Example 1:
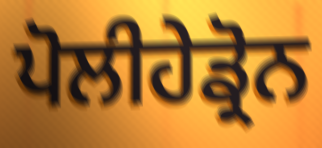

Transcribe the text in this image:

ਪੋਲੀਹੇਡ੍ਰੋਨ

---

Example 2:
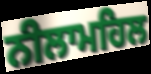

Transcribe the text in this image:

ਨੀਲਾਮਹਿਲ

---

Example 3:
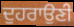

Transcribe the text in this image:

ਦੁਹਰਾਉਣੀ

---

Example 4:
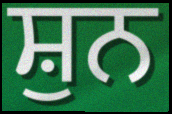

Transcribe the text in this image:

ਸ਼ੁਨ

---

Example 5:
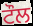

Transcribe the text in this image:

ਟੌਲ